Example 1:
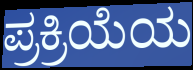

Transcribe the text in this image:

ಪ್ರಕ್ರಿಯೆಯ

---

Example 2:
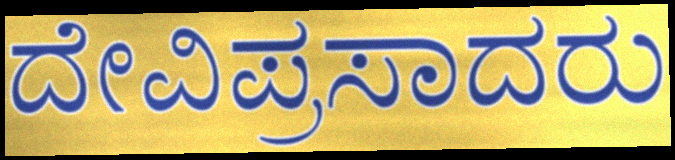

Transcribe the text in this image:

ದೇವಿಪ್ರಸಾದರು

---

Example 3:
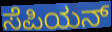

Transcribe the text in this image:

ಸೆಪಿಯನ್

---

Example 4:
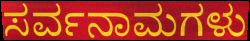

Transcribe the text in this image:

ಸರ್ವನಾಮಗಳು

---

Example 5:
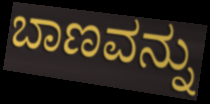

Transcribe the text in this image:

ಬಾಣವನ್ನು